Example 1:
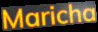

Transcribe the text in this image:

Maricha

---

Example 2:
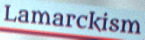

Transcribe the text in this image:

Lamarckism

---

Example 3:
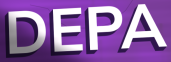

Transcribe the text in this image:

DEPA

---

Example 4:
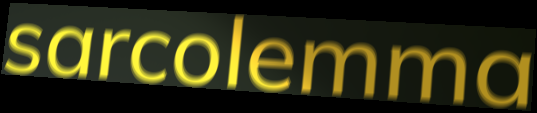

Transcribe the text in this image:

sarcolemma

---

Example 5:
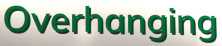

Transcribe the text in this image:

Overhanging